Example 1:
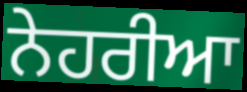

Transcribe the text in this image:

ਨੇਹਰੀਆ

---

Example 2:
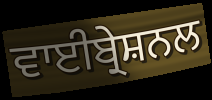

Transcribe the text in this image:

ਵਾਈਬ੍ਰੇਸ਼ਨਲ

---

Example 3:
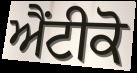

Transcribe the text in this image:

ਐਂਟੀਕੋ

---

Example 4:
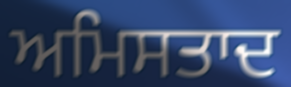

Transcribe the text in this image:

ਅਮਿਸਤਾਦ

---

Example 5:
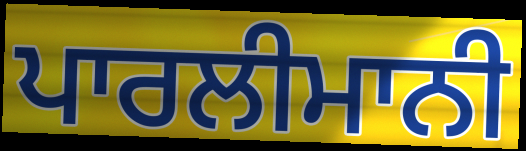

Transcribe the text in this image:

ਪਾਰਲੀਮਾਨੀ